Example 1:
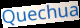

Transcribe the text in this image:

Quechua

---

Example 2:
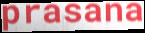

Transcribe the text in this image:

prasana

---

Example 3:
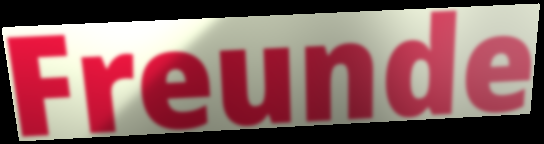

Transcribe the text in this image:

Freunde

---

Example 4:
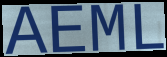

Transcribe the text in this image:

AEML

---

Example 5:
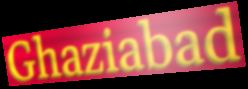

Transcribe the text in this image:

Ghaziabad